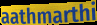
aathmarthi